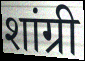
शांग्री